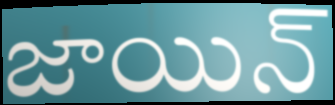
జాయిన్